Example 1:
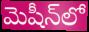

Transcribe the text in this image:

మెషీన్‌లో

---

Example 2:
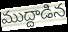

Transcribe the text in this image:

ముద్దాడిన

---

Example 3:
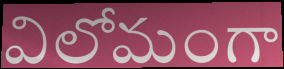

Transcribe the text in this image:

విలోమంగా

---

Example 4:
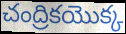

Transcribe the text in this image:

చంద్రికయొక్క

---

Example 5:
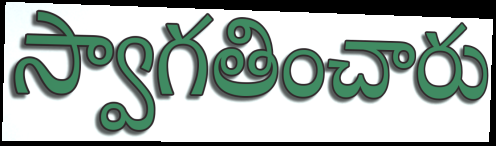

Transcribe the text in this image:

స్వాగతించారు